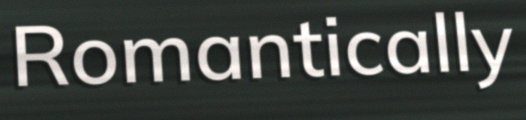
Romantically